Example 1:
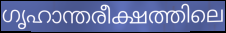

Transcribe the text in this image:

ഗൃഹാന്തരീക്ഷത്തിലെ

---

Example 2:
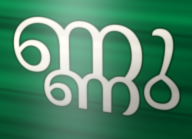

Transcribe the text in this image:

ണ്ണു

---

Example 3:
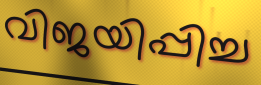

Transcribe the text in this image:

വിജയിപ്പിച്ച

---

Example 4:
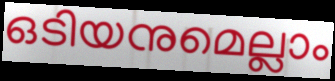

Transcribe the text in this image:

ഒടിയനുമെല്ലാം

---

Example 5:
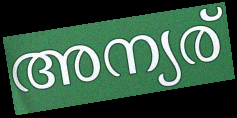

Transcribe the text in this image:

അന്യര്